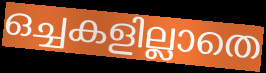
ഒച്ചകളില്ലാതെ